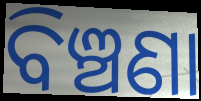
ବିଞ୍ଚଣା